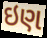
ઇણ